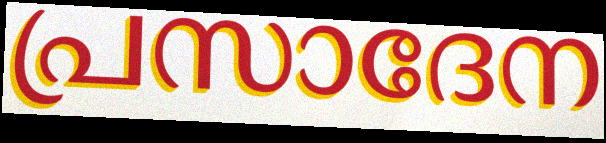
പ്രസാദേന